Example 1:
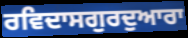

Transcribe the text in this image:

ਰਵਿਦਾਸਗੁਰਦੁਆਰਾ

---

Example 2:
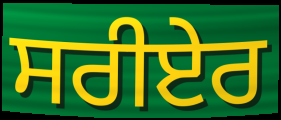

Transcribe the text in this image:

ਸਰੀਏਰ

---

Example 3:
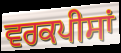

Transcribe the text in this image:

ਵਰਕਪੀਸਾਂ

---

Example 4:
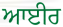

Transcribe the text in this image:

ਆਈਰ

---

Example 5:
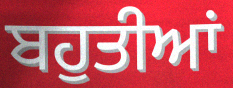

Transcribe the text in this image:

ਬਹੁਤੀਆਂ